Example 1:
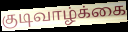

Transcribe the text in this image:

குடிவாழ்க்கை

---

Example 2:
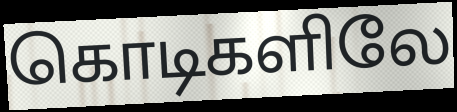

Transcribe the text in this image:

கொடிகளிலே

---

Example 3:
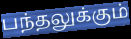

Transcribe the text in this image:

பந்தலுக்கும்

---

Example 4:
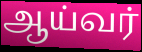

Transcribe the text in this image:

ஆய்வர்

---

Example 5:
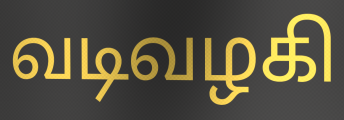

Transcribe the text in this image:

வடிவழகி